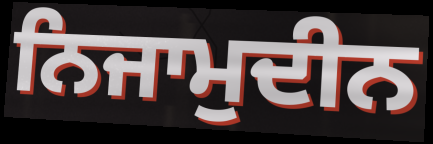
ਨਿਜਾਮੁਦੀਨ